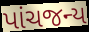
પાંચજન્ય